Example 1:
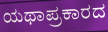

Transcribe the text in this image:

ಯಥಾಪ್ರಕಾರದ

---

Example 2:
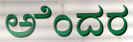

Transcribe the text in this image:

ಅೆಂದರ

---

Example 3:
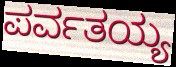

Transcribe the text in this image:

ಪರ್ವತಯ್ಯ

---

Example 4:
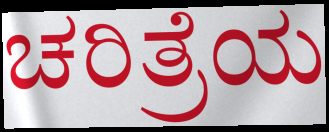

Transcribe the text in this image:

ಚರಿತ್ರೆಯ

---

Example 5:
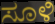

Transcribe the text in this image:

ಸೂಳಿ